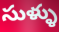
సుళ్ళు